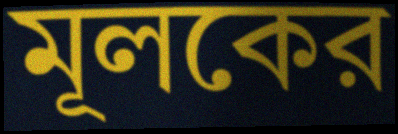
মূলকের